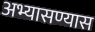
अभ्यासण्यास